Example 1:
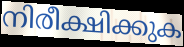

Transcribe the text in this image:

നിരീക്ഷിക്കുക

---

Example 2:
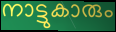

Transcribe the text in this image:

നാട്ടുകാരും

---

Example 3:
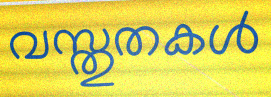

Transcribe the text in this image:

വസ്തുതകൾ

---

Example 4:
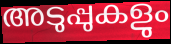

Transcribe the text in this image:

അടുപ്പുകളും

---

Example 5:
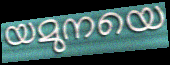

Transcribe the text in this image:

യമുനയെ